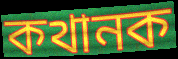
কথানক